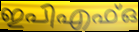
ഇപിഎഫ്ഒ